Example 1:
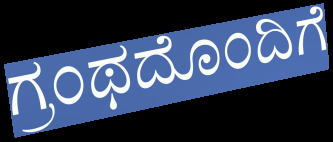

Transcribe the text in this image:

ಗ್ರಂಥದೊಂದಿಗೆ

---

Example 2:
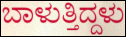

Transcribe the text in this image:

ಬಾಳುತ್ತಿದ್ದಳು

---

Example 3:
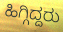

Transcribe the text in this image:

ಹಿಗ್ಗಿದ್ದರು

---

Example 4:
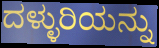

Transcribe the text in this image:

ದಳ್ಳುರಿಯನ್ನು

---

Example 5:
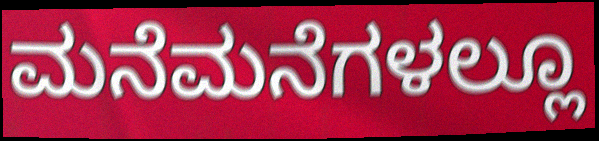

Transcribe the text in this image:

ಮನೆಮನೆಗಳಲ್ಲೂ